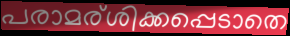
പരാമര്ശിക്കപ്പെടാതെ